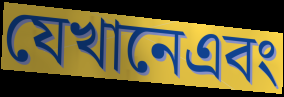
যেখানেএবং